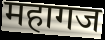
महागज